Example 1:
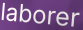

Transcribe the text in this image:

laborer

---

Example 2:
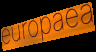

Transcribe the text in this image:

europaea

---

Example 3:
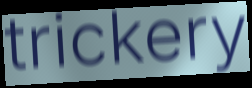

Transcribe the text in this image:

trickery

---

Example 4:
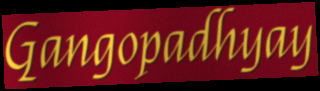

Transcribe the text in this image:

Gangopadhyay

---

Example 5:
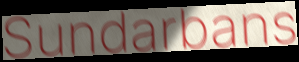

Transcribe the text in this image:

Sundarbans